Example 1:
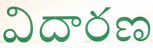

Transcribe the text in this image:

విదారణ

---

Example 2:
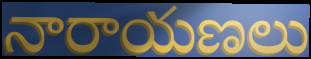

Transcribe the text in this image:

నారాయణలు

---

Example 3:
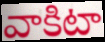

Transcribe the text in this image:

వాకిటా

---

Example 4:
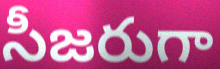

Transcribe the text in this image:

సీజరుగా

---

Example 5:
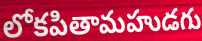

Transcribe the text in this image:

లోకపితామహుడగు